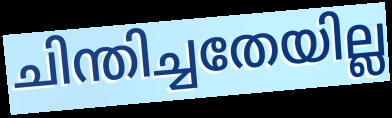
ചിന്തിച്ചതേയില്ല